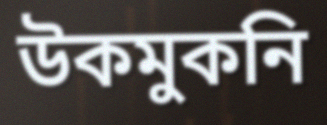
উকমুকনি